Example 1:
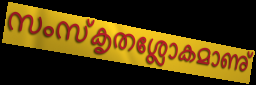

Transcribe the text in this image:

സംസ്കൃതശ്ലോകമാണു്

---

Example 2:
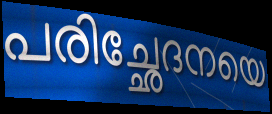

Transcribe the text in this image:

പരിച്ഛേദനയെ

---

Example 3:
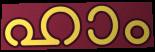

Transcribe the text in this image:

ഹാം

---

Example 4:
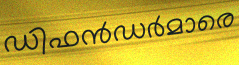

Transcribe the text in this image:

ഡിഫൻഡർമാരെ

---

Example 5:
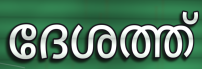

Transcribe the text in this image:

ദേശത്ത്